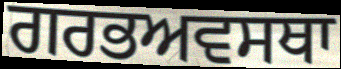
ਗਰਭਅਵਸਥਾ